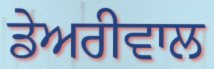
ਡੇਅਰੀਵਾਲ